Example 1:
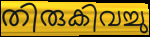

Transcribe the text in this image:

തിരുകിവച്ചു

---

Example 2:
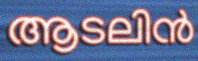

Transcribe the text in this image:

ആടലിൻ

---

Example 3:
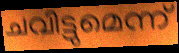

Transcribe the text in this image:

ചവിട്ടുമെന്ന്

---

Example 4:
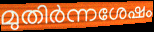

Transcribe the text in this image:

മുതിർന്നശേഷം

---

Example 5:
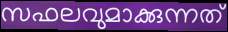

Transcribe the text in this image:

സഫലവുമാക്കുന്നത്